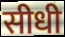
सीधी